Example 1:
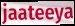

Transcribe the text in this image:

jaateeya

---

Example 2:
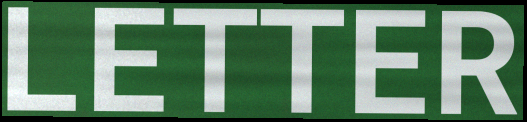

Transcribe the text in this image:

LETTER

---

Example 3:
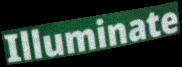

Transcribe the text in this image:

Illuminate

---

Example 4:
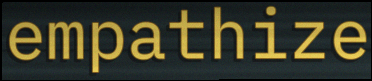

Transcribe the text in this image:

empathize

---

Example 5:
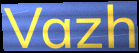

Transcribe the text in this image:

Vazh